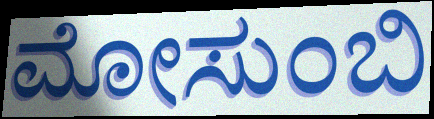
ಮೋಸುಂಬಿ